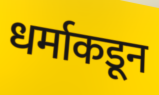
धर्माकडून